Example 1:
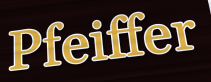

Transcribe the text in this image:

Pfeiffer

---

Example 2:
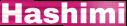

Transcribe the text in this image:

Hashimi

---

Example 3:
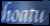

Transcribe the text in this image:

hoatu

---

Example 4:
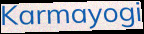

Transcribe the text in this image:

Karmayogi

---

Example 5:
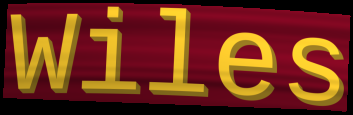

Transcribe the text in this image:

Wiles